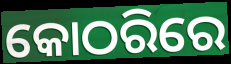
କୋଠରିରେ